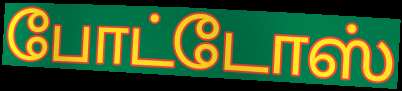
போட்டோஸ்